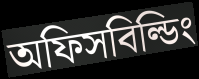
অফিসবিল্ডিং